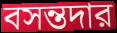
বসন্তদার